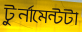
টুর্নামেন্টটা